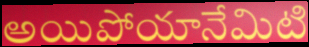
అయిపోయానేమిటి